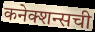
कनेक्शन्सची